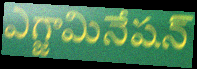
ఎగ్జామినేషన్